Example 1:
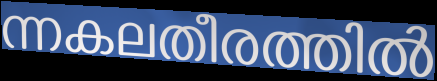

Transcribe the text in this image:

ന്നകലതീരത്തിൽ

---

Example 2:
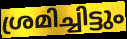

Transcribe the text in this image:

ശ്രമിച്ചിട്ടും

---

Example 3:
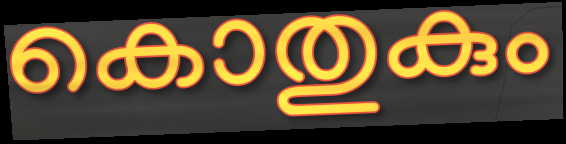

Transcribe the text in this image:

കൊതുകും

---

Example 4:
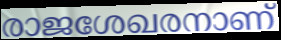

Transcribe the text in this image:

രാജശേഖരനാണ്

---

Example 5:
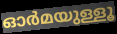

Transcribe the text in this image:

ഓർമയുള്ളൂ